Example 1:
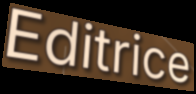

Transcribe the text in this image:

Editrice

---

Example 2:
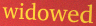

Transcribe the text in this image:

widowed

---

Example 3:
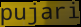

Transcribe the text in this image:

pujari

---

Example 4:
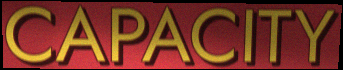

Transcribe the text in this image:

CAPACITY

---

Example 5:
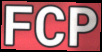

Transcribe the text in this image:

FCP